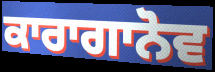
ਕਾਰਾਗਾਨੋਵ